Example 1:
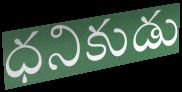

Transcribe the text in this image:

ధనికుడు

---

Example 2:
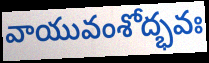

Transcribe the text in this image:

వాయువంశోద్భవః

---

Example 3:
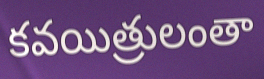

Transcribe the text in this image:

కవయిత్రులంతా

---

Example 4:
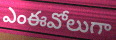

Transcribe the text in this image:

ఎంఈవోలుగా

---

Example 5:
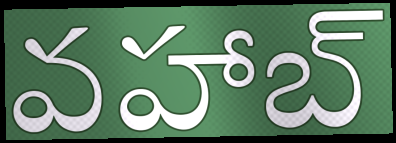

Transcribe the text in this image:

వహాబ్